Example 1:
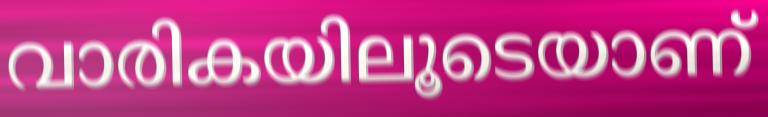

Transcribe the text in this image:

വാരികയിലൂടെയാണ്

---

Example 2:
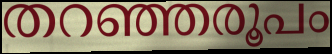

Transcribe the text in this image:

തറഞ്ഞരൂപം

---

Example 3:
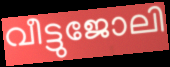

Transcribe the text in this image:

വീട്ടുജോലി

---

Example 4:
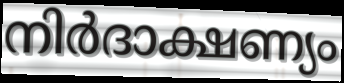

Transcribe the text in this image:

നിർദാക്ഷണ്യം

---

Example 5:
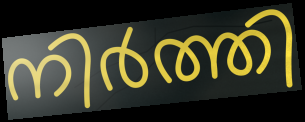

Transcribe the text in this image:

നിർത്തി